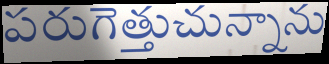
పరుగెత్తుచున్నాను